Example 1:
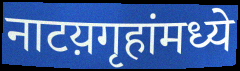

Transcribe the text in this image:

नाटय़गृहांमध्ये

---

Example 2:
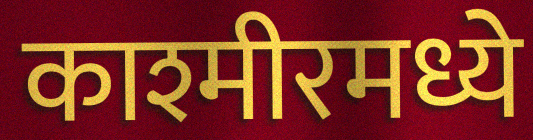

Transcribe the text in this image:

काश्मीरमध्ये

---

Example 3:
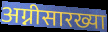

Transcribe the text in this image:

अग्नीसारख्या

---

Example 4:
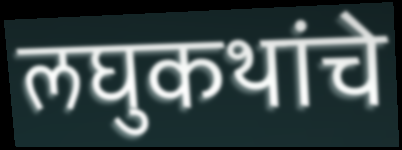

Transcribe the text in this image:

लघुकथांचे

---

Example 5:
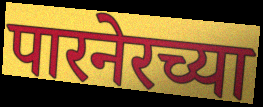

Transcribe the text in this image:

पारनेरच्या